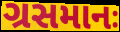
ગ્રસમાનઃ